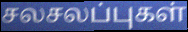
சலசலப்புகள்